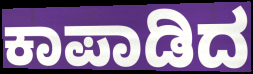
ಕಾಪಾಡಿದ